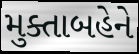
મુક્તાબહેને